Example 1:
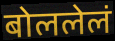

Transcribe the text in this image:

बोललेलं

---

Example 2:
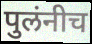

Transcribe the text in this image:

पुलंनीच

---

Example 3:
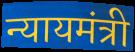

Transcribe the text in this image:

न्यायमंत्री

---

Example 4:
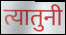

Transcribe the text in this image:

त्यातुनी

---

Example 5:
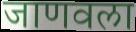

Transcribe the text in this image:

जाणवला